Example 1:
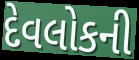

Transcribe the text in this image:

દેવલોકની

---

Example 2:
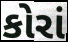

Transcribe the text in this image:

કોરાં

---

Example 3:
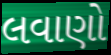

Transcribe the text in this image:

લવાણો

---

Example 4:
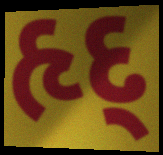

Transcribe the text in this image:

હૃદ્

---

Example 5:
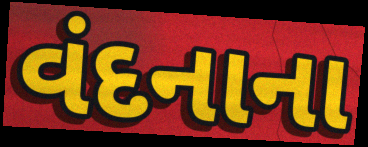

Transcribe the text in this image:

વંદનાના